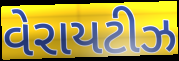
વેરાયટીઝ